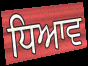
ਧਿਆਵ